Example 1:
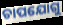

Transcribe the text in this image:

ଚାପଯୋଗୁ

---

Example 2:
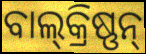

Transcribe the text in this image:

ବାଲ୍‍କ୍ରିଷ୍ଣନ୍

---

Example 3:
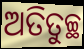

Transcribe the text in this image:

ଅତିତୁଚ୍ଛ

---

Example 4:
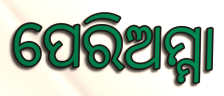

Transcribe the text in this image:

ପେରିଅମ୍ମା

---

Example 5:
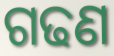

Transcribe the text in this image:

ଗଢଣ